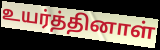
உயர்த்தினாள்